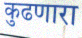
कुढणारा